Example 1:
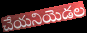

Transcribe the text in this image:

చేయనియెడల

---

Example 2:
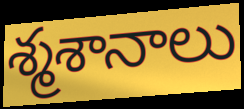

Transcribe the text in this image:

శ్మశానాలు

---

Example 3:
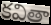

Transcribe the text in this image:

కవితా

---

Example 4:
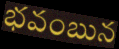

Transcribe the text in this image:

భవంబున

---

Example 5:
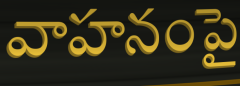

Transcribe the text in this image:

వాహనంపై